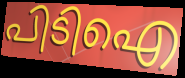
പിടിഐ